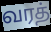
வரத்